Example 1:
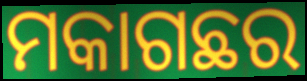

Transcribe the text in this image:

ମକାଗଛର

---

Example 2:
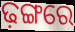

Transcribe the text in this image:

ଢ଼ଙ୍ଗରେ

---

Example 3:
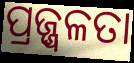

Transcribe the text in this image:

ପ୍ରଜ୍ଜ୍ୱଳତା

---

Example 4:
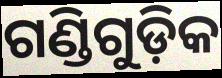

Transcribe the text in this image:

ଗଣ୍ଡିଗୁଡ଼ିକ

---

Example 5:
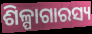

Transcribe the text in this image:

ଶିଳ୍ପାଗାରସ୍ୟ